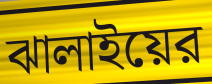
ঝালাইয়ের